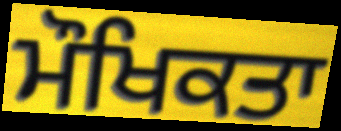
ਮੌਖਿਕਤਾ